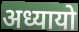
अध्यायो